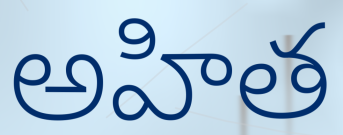
అహిత